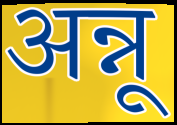
अन्नू